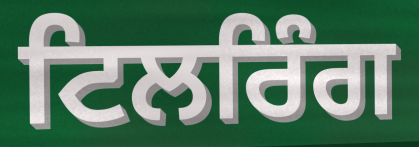
ਟਿਲਰਿੰਗ